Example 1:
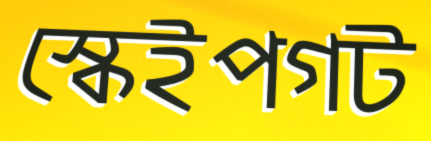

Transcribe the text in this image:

স্কেইপগট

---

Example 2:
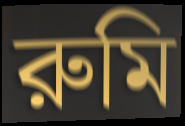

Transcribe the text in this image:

রুমি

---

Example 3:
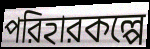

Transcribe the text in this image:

পরিহারকল্পে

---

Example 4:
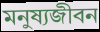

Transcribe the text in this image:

মনুষ্যজীবন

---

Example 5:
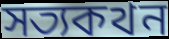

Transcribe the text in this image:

সত্যকথন